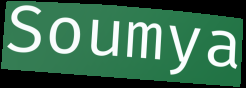
Soumya